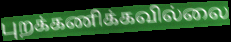
புறக்கணிக்கவில்லை